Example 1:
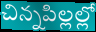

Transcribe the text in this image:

చిన్నపిల్లల్లో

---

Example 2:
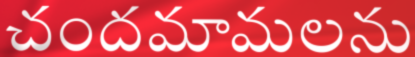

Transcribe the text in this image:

చందమామలను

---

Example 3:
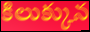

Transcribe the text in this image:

కిలుక్కున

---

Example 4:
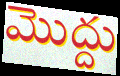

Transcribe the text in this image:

మొద్దు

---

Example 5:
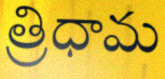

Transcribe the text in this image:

త్రిధామ